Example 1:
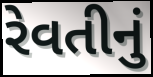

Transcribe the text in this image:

રેવતીનું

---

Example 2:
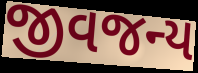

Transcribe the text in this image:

જીવજન્ય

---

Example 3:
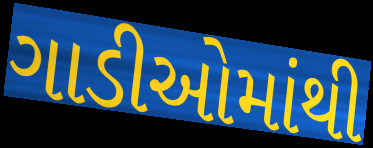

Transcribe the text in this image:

ગાડીઓમાંથી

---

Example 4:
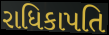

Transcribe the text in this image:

રાધિકાપતિ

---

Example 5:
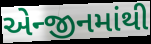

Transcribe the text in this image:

એન્જીનમાંથી